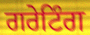
ਗਰੇਟਿੰਗ